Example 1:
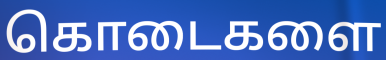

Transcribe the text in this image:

கொடைகளை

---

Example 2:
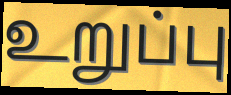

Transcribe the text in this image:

உறுப்பு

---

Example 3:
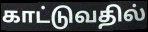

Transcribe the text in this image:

காட்டுவதில்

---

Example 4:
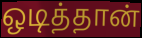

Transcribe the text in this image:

ஒடித்தான்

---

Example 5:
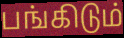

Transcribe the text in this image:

பங்கிடும்